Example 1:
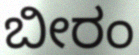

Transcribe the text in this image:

ಬೀರಂ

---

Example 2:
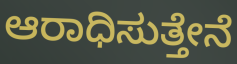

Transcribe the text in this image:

ಆರಾಧಿಸುತ್ತೇನೆ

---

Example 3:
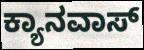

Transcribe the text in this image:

ಕ್ಯಾನವಾಸ್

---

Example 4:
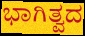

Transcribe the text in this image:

ಭಾಗಿತ್ವದ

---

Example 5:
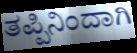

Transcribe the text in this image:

ತಪ್ಪಿನಿಂದಾಗಿ